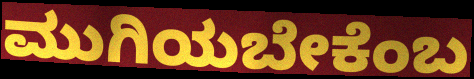
ಮುಗಿಯಬೇಕೆಂಬ